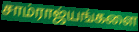
சாம்ராஜ்யங்களை